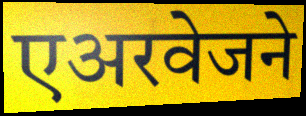
एअरवेजने